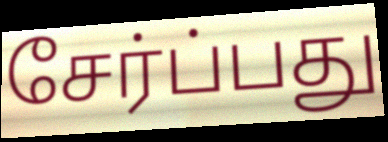
சேர்ப்பது